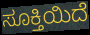
ಸೂಕ್ತಿಯಿದೆ